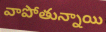
వాపోతున్నాయి